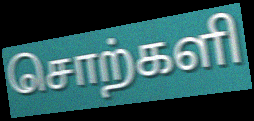
சொற்களி